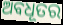
ଅବଧୂତର